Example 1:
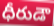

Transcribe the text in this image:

ధీరుడౌ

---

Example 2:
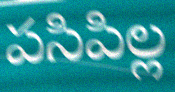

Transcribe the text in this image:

పసిపిల్ల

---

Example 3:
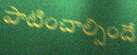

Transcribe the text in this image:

పాటించాల్సిందే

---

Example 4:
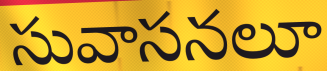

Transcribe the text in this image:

సువాసనలూ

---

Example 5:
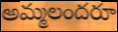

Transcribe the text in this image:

అమ్మలందరూ